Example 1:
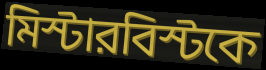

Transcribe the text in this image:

মিস্টারবিস্টকে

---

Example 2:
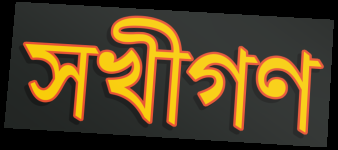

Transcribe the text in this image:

সখীগণ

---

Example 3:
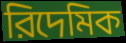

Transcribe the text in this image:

রিদেমিক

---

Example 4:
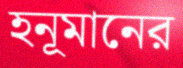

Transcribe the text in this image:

হনূমানের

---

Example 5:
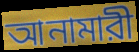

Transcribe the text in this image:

আনামারী